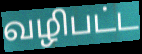
வழிபட்ட